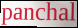
panchal